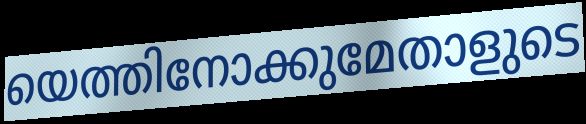
യെത്തിനോക്കുമേതാളുടെ